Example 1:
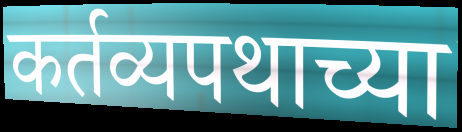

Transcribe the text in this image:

कर्तव्यपथाच्या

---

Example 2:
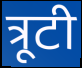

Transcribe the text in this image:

त्रूटी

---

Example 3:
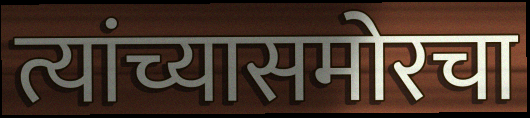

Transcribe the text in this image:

त्यांच्यासमोरचा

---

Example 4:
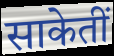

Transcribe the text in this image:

साकेतीं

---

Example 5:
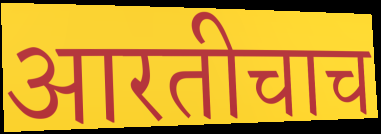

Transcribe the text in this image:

आरतीचाच